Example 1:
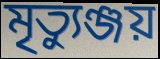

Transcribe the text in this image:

মৃত্যুঞ্জয়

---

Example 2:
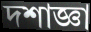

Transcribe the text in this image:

দশাজ্ঞা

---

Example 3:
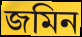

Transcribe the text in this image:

জমিন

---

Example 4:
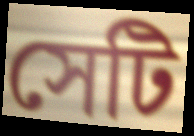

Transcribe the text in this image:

সেটি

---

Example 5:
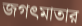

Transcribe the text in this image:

জগৎমাতার